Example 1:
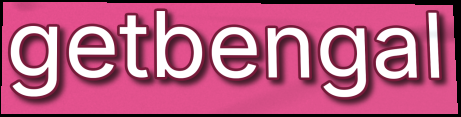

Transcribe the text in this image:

getbengal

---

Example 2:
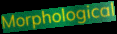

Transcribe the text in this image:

Morphological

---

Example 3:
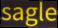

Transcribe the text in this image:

sagle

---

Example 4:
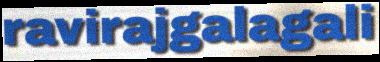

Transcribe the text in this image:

ravirajgalagali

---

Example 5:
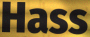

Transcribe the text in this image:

Hass